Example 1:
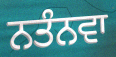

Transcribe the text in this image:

ਨਤੰਨਵਾ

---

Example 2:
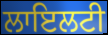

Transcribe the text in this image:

ਲਾਇਲਟੀ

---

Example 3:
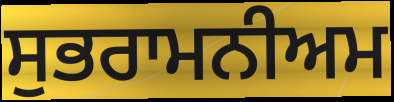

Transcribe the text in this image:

ਸੁਭਰਾਮਨੀਅਮ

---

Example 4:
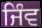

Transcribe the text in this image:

ਜਿੰਵ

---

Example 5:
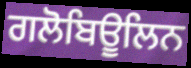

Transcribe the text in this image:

ਗਲੋਬਿਊਲਿਨ